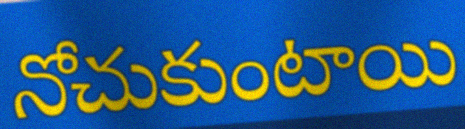
నోచుకుంటాయి